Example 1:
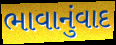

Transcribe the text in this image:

ભાવાનુંવાદ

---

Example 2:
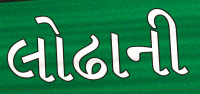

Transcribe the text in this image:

લોઢાની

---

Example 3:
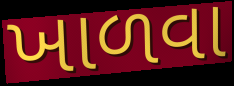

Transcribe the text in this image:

ખાળવા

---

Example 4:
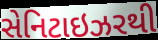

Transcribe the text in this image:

સેનિટાઇઝરથી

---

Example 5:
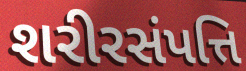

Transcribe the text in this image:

શરીરસંપત્તિ